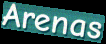
Arenas